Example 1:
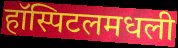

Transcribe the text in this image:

हॉस्पिटलमधली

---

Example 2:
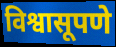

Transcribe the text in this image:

विश्वासूपणे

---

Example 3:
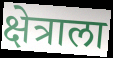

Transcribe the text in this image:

क्षेत्राला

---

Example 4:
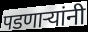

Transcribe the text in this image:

पडणाऱ्यांनी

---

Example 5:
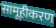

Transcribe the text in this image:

सामूहीकरण